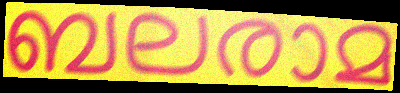
ബലരാമ